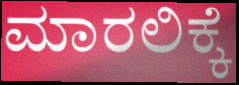
ಮಾರಲಿಕ್ಕೆ